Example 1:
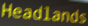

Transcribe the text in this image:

Headlands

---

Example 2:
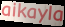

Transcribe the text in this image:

aikayla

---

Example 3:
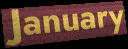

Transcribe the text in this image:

January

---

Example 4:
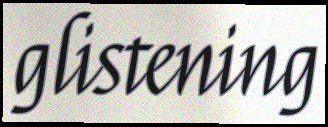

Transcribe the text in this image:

glistening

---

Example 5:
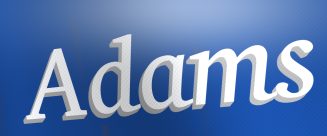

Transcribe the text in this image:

Adams